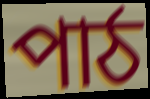
পাঠ